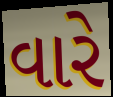
વારે